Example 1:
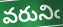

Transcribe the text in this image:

వరునిఁ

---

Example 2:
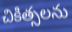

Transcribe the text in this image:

చికిత్సలను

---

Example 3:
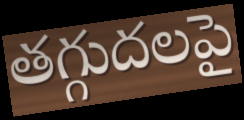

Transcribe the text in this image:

తగ్గుదలపై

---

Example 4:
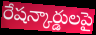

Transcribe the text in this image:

రేషన్కార్డులపై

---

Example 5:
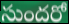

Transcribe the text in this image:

సుందరో